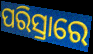
ପରିସ୍ରାରେ